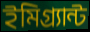
ইমিগ্র্যান্ট